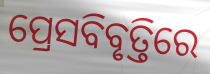
ପ୍ରେସବିବୃତ୍ତିରେ